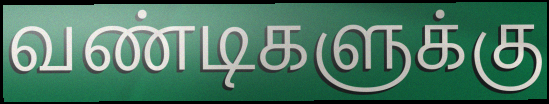
வண்டிகளுக்கு